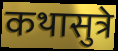
कथासुत्रे